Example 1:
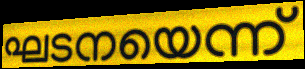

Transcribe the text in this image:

ഘടനയെന്ന്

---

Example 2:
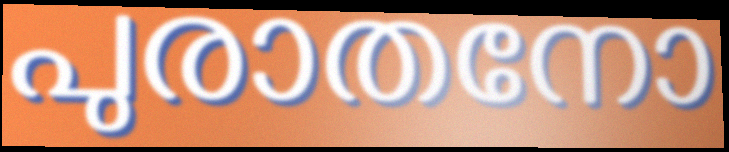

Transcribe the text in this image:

പുരാതനോ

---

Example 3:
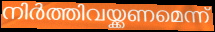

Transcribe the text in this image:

നിർത്തിവയ്ക്കണമെന്ന്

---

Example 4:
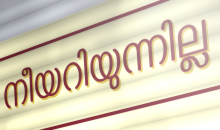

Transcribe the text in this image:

നീയറിയുന്നില്ല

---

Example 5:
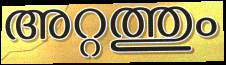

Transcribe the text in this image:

അറ്റത്തും